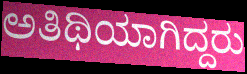
ಅತಿಥಿಯಾಗಿದ್ದರು